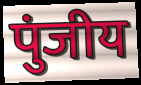
पुंजीय